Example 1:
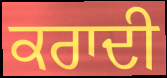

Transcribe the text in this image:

ਕਰਾਦੀ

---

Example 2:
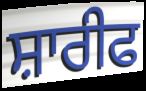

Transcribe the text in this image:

ਸ਼ਾਰੀਫ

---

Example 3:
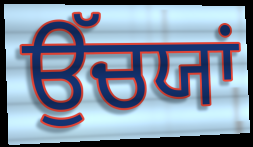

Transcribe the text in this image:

ਉੱਚਯਾਂ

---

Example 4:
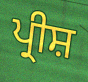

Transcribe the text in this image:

ਪ੍ਰੀਸ਼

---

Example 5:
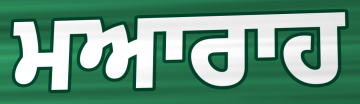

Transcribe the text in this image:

ਮਆਰਾਹ